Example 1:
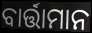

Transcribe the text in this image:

ବାର୍ତ୍ତାମାନ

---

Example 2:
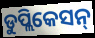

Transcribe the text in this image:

ଡୁପ୍ଲିକେସନ୍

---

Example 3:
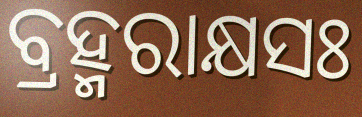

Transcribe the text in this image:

ବ୍ରହ୍ମରାକ୍ଷସଃ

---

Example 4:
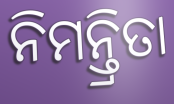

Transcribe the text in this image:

ନିମନ୍ତ୍ରିତା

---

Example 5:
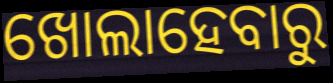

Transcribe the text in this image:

ଖୋଲାହେବାରୁ